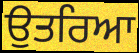
ਉਤਰਿਆ